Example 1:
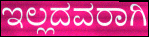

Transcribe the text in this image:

ಇಲ್ಲದವರಾಗಿ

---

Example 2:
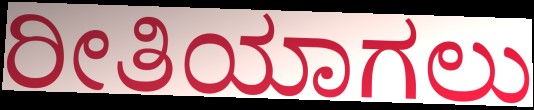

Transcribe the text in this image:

ರೀತಿಯಾಗಲು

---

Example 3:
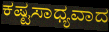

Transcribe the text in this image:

ಕಷ್ಟಸಾಧ್ಯವಾದ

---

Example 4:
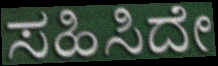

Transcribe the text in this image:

ಸಹಿಸಿದೇ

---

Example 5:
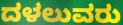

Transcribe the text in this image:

ದಳಲುವರು